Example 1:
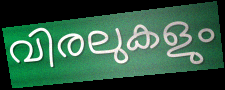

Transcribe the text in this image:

വിരലുകളും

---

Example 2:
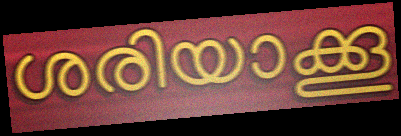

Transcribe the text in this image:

ശരിയാക്കൂ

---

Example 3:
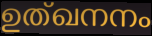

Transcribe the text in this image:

ഉത്ഖനനം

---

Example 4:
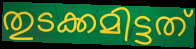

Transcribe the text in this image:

തുടക്കമിട്ടത്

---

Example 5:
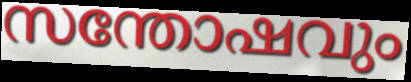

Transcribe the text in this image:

സന്തോഷവും